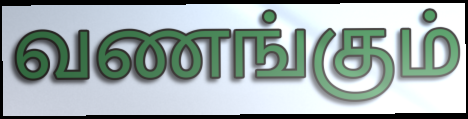
வணங்கும்